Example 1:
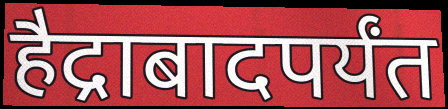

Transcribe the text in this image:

हैद्राबादपर्यंत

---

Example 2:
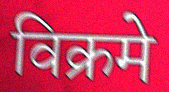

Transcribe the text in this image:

विक्रमे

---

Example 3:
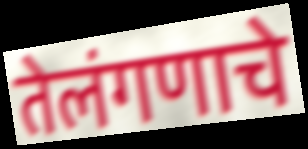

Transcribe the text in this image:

तेलंगणाचे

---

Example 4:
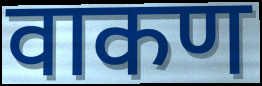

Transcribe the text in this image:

वाकण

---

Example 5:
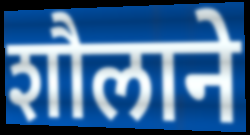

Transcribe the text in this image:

शौलाने